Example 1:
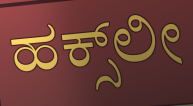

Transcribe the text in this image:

ಹಕ್ಸ್‌ಲೀ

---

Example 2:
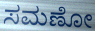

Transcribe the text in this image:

ಸಮಣೋ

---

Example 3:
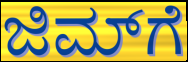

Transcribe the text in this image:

ಜಿಮ್‌ಗೆ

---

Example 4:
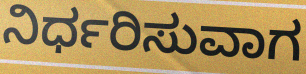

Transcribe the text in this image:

ನಿರ್ಧರಿಸುವಾಗ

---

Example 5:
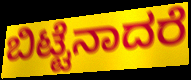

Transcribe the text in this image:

ಬಿಟ್ಟೆನಾದರೆ